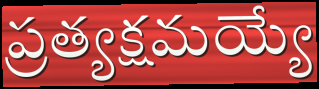
ప్రత్యక్షమయ్యే